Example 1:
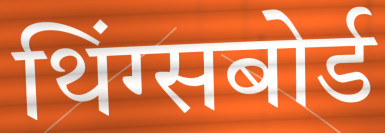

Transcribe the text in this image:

थिंग्सबोर्ड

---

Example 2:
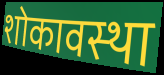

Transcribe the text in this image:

शोकावस्था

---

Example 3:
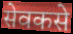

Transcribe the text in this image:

सेवकसे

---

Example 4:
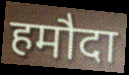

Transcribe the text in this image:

हमौदा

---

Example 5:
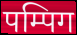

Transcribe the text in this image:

पम्पिग